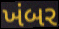
ખંબર